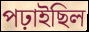
পঢ়াইছিল